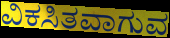
ವಿಕಸಿತವಾಗುವ